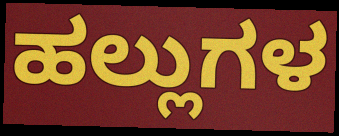
ಹಲ್ಲುಗಳ